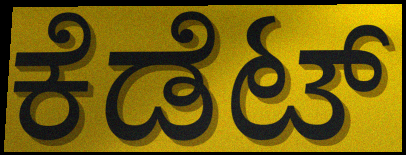
ಕೆಡೆಟ್